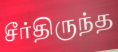
சீர்திருந்த